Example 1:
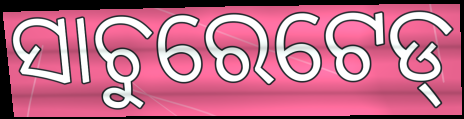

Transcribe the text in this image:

ସାଚୁରେଟେଡ୍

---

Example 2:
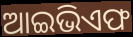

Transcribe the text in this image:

ଆଇଭିଏଫ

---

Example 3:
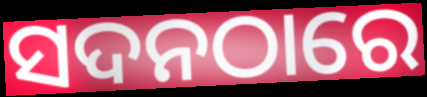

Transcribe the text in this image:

ସଦନଠାରେ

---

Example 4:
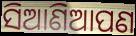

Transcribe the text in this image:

ସିଆଣିଆପଣ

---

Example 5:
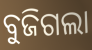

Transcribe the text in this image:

ବୁଜିଗଲା